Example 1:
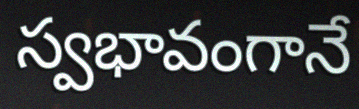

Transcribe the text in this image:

స్వభావంగానే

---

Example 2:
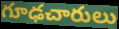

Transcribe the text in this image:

గూఢచారులు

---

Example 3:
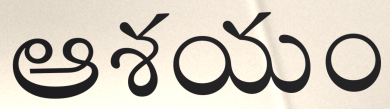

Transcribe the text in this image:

ఆశయం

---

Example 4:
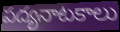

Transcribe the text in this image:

పద్యనాటకాలు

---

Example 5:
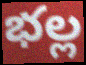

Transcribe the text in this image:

భల్ల